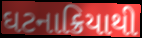
ઘટનાક્રિયાથી